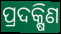
ପ୍ରଦକ୍ଷିଣ